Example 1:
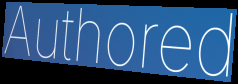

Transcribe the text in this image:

Authored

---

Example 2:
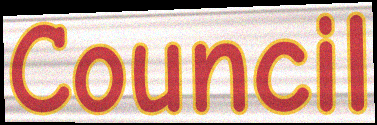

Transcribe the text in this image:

Council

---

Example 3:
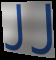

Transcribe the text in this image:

JJ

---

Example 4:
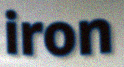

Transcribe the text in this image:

iron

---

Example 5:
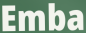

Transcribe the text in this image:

Emba